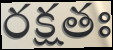
రక్షతః